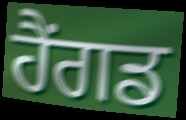
ਹੈਂਗਡ